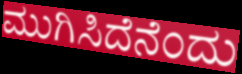
ಮುಗಿಸಿದೆನೆಂದು